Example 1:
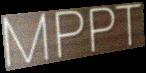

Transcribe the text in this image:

MPPT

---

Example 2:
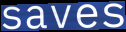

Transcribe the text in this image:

saves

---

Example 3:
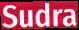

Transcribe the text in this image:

Sudra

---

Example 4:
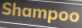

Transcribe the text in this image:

Shampoo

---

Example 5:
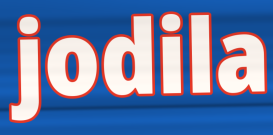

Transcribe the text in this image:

jodila